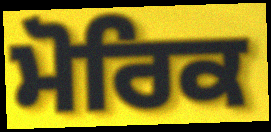
ਮੋਰਿਕ